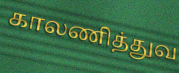
காலணித்துவ